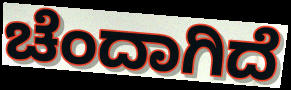
ಚೆಂದಾಗಿದೆ